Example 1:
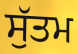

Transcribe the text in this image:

ਸੁੱਤਮ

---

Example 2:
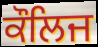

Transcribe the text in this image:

ਕੌਲਿਜ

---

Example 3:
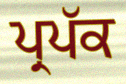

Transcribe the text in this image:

ਪ੍ਰਪੱਕ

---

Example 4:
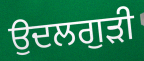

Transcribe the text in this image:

ਉਦਲਗੁੜੀ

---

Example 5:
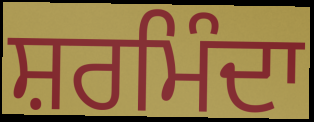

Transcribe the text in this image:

ਸ਼ਰਮਿੰਦਾ